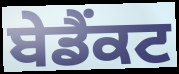
ਬੇਡੈਂਕਟ